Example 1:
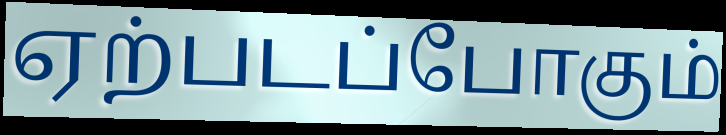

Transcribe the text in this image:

ஏற்படப்போகும்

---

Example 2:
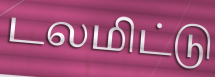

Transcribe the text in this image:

டலமிட்டு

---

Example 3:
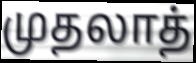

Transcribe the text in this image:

முதலாத்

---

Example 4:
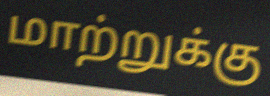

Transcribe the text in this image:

மாற்றுக்கு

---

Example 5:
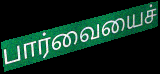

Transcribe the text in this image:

பார்வையைச்